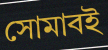
সোমাবই